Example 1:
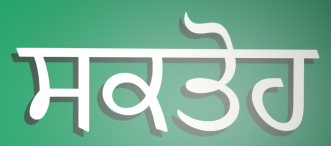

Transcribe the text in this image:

ਸਕਤੋਹ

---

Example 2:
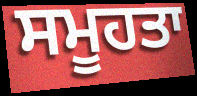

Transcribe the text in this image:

ਸਮੂਹਤਾ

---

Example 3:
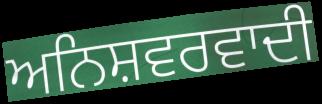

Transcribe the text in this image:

ਅਨਿਸ਼ਵਰਵਾਦੀ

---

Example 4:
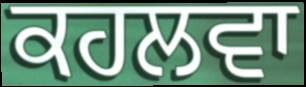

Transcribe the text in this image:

ਕਹਲਵਾ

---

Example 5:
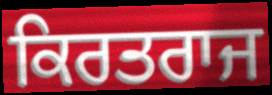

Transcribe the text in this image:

ਕਿਰਤਰਾਜ